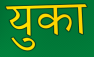
युका